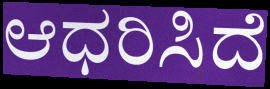
ಆಧರಿಸಿದೆ